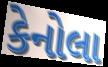
કેનોલા